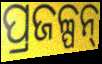
ପ୍ରଜଳ୍ପନ୍